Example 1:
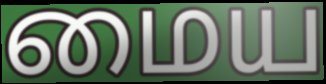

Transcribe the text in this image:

மைய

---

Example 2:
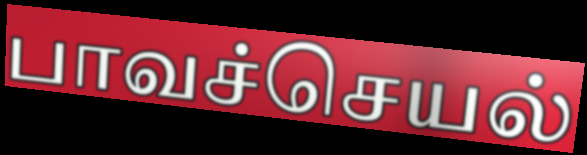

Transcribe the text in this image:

பாவச்செயல்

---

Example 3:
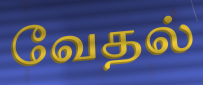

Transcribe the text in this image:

வேதல்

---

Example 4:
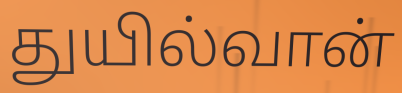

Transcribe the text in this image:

துயில்வான்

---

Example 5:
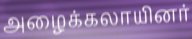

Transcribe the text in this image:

அழைக்கலாயினர்